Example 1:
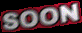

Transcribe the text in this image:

SOON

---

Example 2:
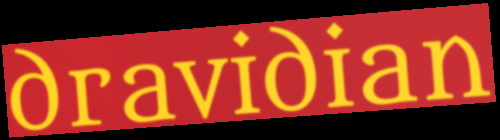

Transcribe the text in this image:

dravidian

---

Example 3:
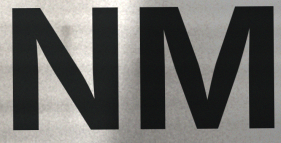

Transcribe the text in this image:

NM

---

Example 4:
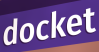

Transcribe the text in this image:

docket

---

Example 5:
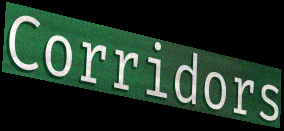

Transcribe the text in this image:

Corridors